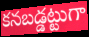
కనబడ్డట్టుగా